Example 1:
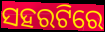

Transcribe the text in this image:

ସହରଟିରେ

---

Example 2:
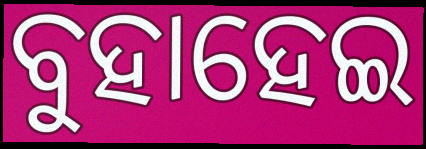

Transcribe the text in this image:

ବୁହାହେଇ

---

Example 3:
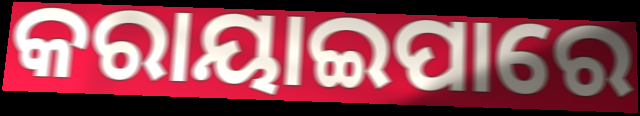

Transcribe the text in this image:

କରାୟାଇପାରେ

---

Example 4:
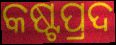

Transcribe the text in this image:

କଷ୍ଟପ୍ରଦ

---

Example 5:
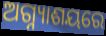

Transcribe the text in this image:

ଅଗ୍ନ୍ୟାଶୟରେ